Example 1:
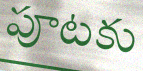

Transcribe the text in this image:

పూటకు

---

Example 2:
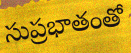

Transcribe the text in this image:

సుప్రభాతంతో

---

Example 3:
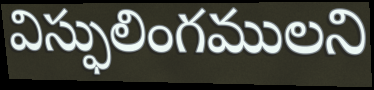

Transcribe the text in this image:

విస్ఫులింగములని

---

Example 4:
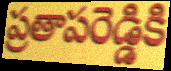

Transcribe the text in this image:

ప్రతాపరెడ్డికి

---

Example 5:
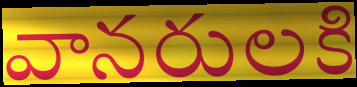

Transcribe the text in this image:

వానరులకి